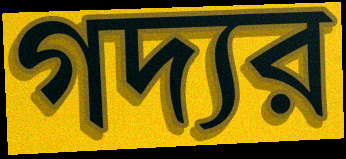
গদ্যর